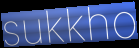
sukkho